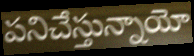
పనిచేస్తున్నాయో